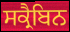
ਸਕ੍ਰੈਬਿਨ